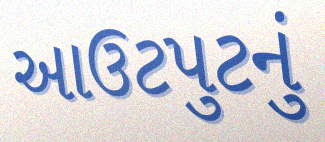
આઉટપુટનું